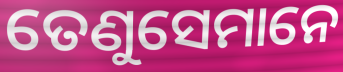
ତେଣୁସେମାନେ